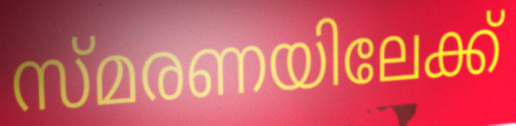
സ്മരണയിലേക്ക്